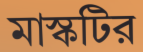
মাস্কটির